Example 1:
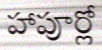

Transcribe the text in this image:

హాపూర్లో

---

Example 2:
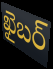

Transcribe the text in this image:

ఖైబర్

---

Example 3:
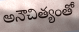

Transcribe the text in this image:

అనౌచిత్యంతో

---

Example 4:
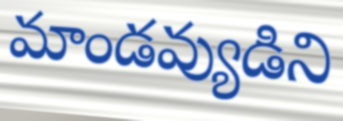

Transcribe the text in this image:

మాండవ్యుడిని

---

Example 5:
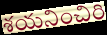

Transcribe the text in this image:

శయనించిరి